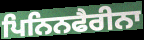
ਪਿਨਿਨਫੈਰੀਨਾ